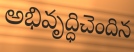
అభివృద్ధిచెందిన